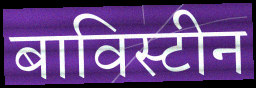
बाविस्टीन